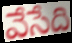
వేసేది